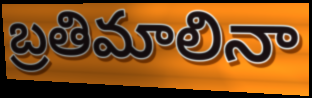
బ్రతిమాలినా